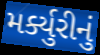
મર્ક્યુરીનું